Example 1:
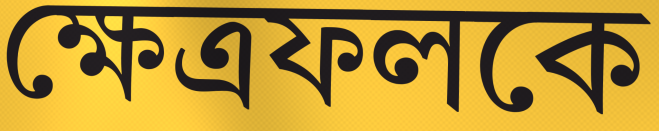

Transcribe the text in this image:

ক্ষেত্রফলকে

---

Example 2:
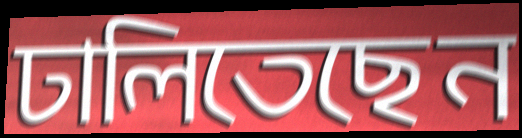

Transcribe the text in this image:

ঢালিতেছেন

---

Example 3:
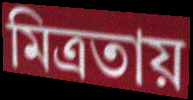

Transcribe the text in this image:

মিত্রতায়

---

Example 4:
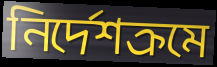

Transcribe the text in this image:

নির্দেশক্রমে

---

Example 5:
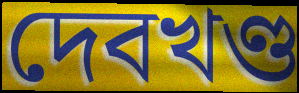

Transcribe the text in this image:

দেবখণ্ড